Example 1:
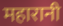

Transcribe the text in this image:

महारानी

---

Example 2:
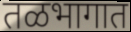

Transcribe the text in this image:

तळभागात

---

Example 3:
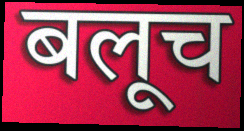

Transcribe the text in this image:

बलूच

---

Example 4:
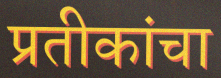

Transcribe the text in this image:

प्रतीकांचा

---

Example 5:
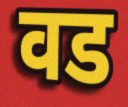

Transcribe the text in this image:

वड